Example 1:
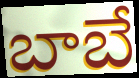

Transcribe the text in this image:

బాబే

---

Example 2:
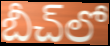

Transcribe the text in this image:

బీచ్‌లో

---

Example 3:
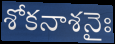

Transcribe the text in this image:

శోకనాశనైః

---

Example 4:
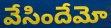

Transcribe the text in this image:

వేసిందేమో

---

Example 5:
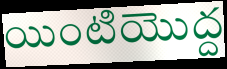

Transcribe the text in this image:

యింటియొద్ద